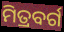
ମିତ୍ରବର୍ଗ